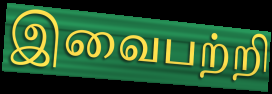
இவைபற்றி